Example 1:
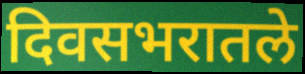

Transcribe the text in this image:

दिवसभरातले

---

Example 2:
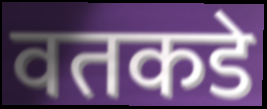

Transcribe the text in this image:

वतकडे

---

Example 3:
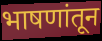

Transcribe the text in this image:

भाषणांतून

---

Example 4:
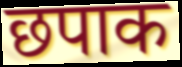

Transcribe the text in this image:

छपाक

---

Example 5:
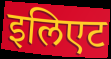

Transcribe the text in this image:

इलिएट